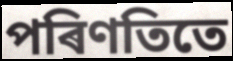
পৰিণতিতে